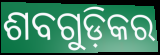
ଶବଗୁଡ଼ିକର